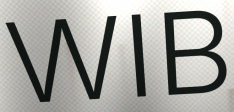
WIB